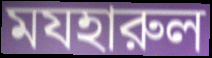
মযহারুল